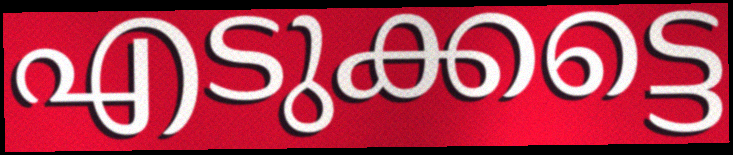
എടുക്കട്ടെ